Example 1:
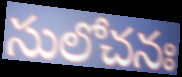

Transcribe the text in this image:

సులోచనః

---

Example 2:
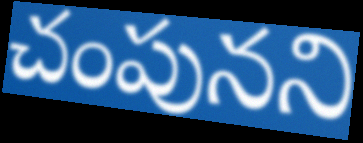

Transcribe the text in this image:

చంపునని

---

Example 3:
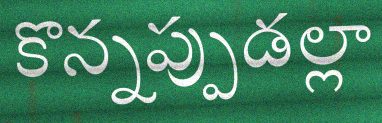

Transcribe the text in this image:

కొన్నప్పుడల్లా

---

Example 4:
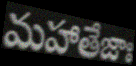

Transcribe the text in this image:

మహాతేజాః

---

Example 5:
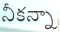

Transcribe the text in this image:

నీకన్నా